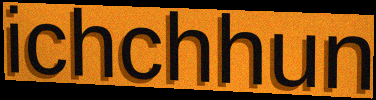
ichchhun